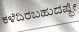
ಕಳೆದಿರಬಹುದಷ್ಟೇ